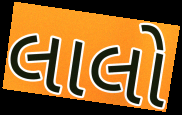
લાલો